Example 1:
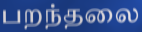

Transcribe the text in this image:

பறந்தலை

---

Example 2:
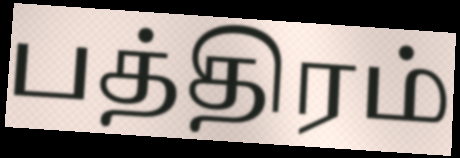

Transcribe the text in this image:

பத்திரம்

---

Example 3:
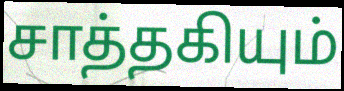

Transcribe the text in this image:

சாத்தகியும்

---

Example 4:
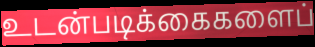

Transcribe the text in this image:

உடன்படிக்கைகளைப்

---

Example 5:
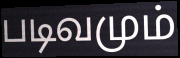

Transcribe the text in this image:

படிவமும்